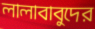
লালাবাবুদের